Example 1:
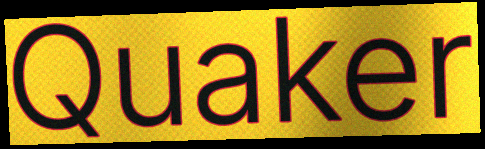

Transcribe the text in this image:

Quaker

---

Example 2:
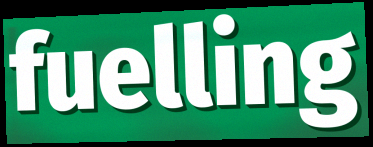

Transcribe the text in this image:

fuelling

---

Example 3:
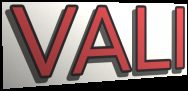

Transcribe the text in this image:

VALI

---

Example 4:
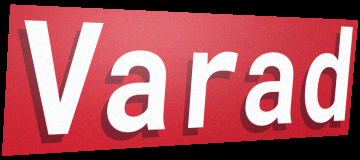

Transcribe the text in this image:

Varad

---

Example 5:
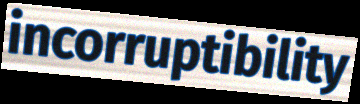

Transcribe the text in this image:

incorruptibility